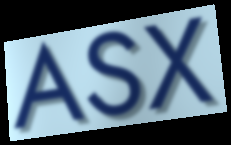
ASX